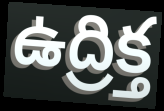
ఉద్రిక్త